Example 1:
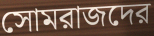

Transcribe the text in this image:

সোমরাজদের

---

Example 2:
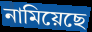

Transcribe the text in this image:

নামিয়েছে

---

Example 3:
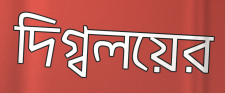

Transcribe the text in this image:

দিগ্বলয়ের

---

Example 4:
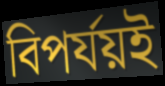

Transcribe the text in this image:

বিপর্যয়ই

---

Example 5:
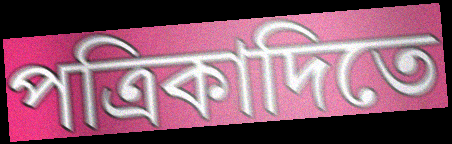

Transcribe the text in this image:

পত্রিকাদিতে